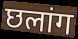
छलांग